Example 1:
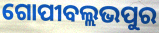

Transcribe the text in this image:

ଗୋପୀବଲ୍ଲଭପୁର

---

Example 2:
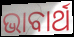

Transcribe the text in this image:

ଭାବାର୍ଥ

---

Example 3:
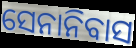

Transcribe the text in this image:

ସେନାନିବାସ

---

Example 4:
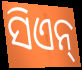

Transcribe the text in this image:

ସିଏନ୍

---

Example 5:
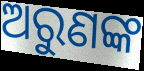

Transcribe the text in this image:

ଅରୁଣଙ୍କ